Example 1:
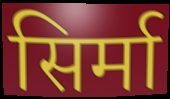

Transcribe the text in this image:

सिर्मा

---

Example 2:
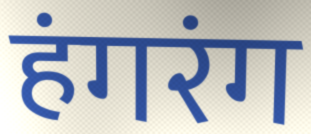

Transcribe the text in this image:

हंगरंग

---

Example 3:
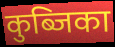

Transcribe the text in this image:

कुब्जिका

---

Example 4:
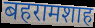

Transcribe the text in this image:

बहरामशाह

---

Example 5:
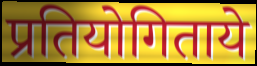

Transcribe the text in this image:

प्रतियोगिताये